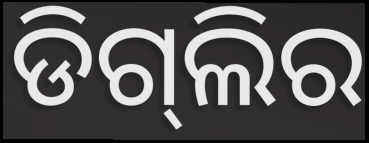
ଡିଗ୍‌ଲିର